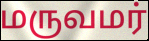
மருவமர்